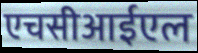
एचसीआईएल